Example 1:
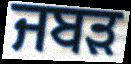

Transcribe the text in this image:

ਜਬੜ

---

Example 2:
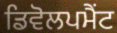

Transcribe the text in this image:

ਡਿਵੋਲਪਮੈਂਟ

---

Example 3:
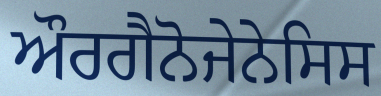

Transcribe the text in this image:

ਔਰਗੈਨੋਜੇਨੇਸਿਸ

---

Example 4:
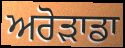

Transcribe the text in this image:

ਅਰੋੜਾਡਾ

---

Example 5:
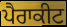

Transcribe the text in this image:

ਪੈਰਾਕੀਟ